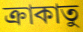
ক্রাকাতু